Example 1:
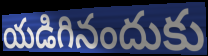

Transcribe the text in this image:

యడిగినందుకు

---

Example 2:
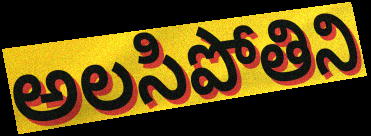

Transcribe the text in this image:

అలసిపోతిని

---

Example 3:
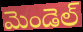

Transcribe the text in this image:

మెండెల్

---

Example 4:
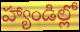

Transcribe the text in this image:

హ్యాండిల్లో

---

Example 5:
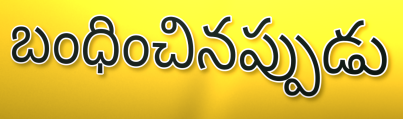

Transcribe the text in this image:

బంధించినప్పుడు